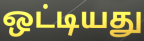
ஒட்டியது